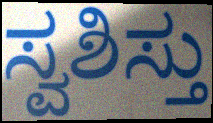
ಸ್ವಶಿಸ್ತು